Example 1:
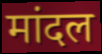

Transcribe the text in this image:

मांदल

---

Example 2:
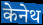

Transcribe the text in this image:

केनेथ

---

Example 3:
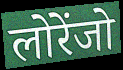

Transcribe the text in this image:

लोरेंजो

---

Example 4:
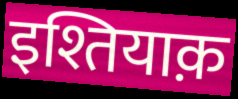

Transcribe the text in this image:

इश्तियाक़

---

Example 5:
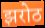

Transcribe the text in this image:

झरोठ